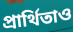
প্রার্থিতাও